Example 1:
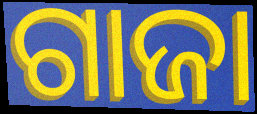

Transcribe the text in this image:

ଗାଜା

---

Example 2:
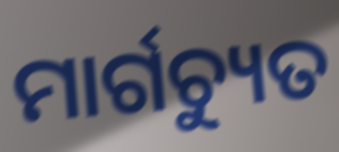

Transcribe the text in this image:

ମାର୍ଗଚ୍ୟୁତ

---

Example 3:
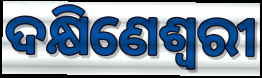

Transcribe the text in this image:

ଦକ୍ଷିଣେଶ୍ଵରୀ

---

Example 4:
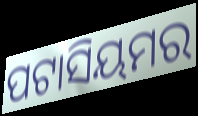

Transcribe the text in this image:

ପଟାସିୟମର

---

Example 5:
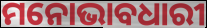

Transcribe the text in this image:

ମନୋଭାବଧାରୀ